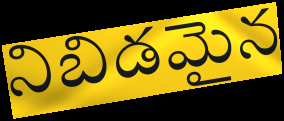
నిబిడమైన